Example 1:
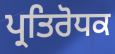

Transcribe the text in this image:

ਪ੍ਰਤਿਰੋਧਕ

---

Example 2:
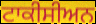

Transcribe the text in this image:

ਟਾਕੀਸੀਅਨ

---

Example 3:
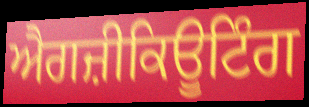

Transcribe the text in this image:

ਐਗਜ਼ੀਕਿਊਟਿੰਗ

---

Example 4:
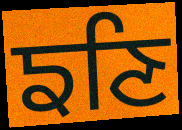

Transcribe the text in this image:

ਙਣਿ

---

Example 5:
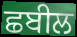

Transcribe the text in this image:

ਛਬੀਲ